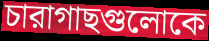
চারাগাছগুলোকে